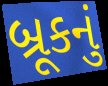
બ્રૂકનું